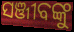
ସଞ୍ଜୀବଙ୍କୁ